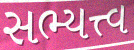
સભ્યત્ત્વ